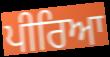
ਪੀਰਿਆ